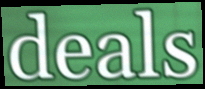
deals